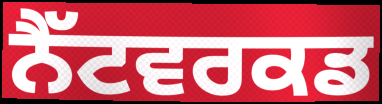
ਨੈੱਟਵਰਕਡ